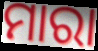
ମାରା